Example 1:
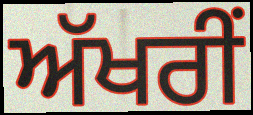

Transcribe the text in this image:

ਅੱਖਰੀਂ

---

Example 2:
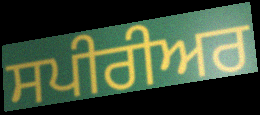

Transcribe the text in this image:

ਸਪੀਰੀਅਰ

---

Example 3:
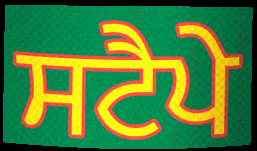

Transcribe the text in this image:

ਸਟੈਪੇ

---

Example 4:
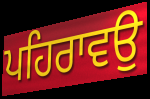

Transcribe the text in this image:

ਪਹਿਰਾਵਉ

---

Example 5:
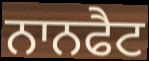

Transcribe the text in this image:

ਨਾਨਫੈਟ